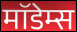
मॉडेम्स